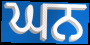
ਘਨ